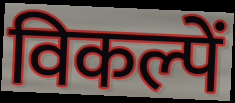
विकल्पें